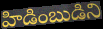
హిడింబుడిని